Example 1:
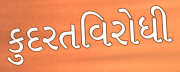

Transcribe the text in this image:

કુદરતવિરોધી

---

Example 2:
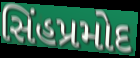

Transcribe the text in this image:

સિંહપ્રમોદ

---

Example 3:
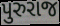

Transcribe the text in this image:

પુરુરાજ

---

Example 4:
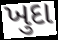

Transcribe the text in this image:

ખુદા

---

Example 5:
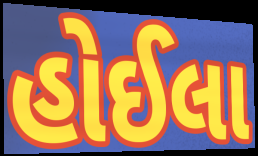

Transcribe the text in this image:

હોઈલા